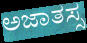
ಅಜಾತಸ್ಸ